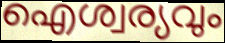
ഐശ്വര്യവും